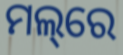
ମଲ୍‌ରେ